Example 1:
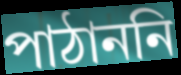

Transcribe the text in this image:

পাঠাননি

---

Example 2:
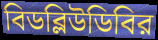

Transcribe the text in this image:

বিডব্লিউডিবির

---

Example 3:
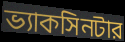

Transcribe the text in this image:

ভ্যাকসিনটার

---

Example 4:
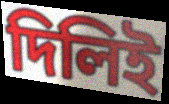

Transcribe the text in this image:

দিলিই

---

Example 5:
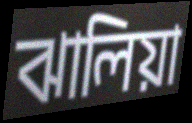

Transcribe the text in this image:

ঝালিয়া